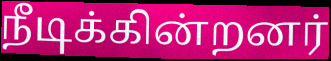
நீடிக்கின்றனர்